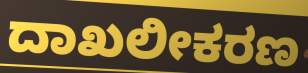
ದಾಖಲೀಕರಣ